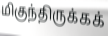
மிகுந்திருக்கக்